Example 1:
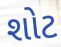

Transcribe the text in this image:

શોટ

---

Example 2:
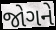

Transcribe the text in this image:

જોગને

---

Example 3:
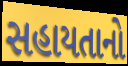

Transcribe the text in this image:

સહાયતાનો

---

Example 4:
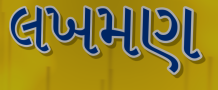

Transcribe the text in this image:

લખમણ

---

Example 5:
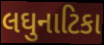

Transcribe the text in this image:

લઘુનાટિકા